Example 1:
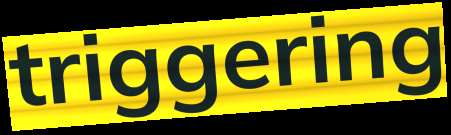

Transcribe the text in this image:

triggering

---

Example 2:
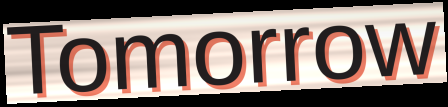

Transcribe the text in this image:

Tomorrow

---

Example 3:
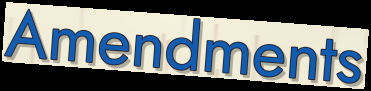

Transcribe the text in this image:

Amendments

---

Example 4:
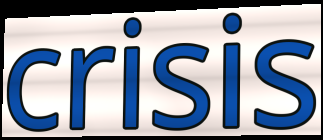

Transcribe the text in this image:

crisis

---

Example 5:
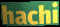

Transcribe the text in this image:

hachi